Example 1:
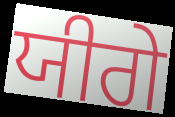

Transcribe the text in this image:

ਯੀਗੇ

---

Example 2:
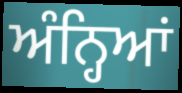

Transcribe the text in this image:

ਅੰਨ੍ਹਿਆਂ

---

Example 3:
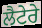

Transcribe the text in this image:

ਲੈਟੇਰੇ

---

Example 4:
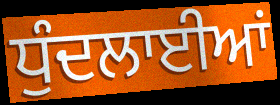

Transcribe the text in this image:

ਧੁੰਦਲਾਈਆਂ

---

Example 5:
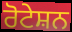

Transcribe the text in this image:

ਰੋਟੇਸ਼ਨ